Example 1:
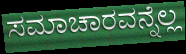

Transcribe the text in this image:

ಸಮಾಚಾರವನ್ನೆಲ್ಲ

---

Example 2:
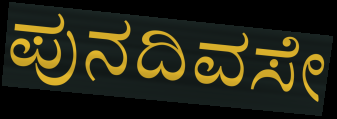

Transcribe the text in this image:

ಪುನದಿವಸೇ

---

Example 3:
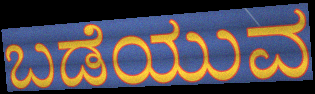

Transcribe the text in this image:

ಬಡೆಯುವ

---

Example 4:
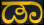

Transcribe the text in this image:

ಡಾ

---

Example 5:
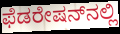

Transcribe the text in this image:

ಫೆಡರೇಷನ್‌ನಲ್ಲಿ